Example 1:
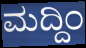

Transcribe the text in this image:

ಮದ್ದಿಂ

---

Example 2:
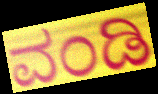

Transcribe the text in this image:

ವಂಡಿ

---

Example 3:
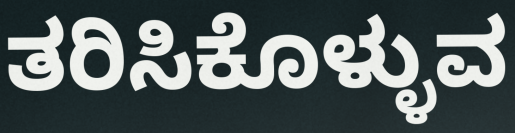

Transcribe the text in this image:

ತರಿಸಿಕೊಳ್ಳುವ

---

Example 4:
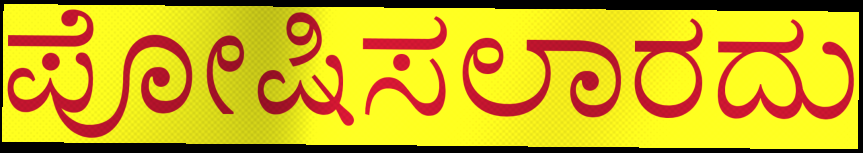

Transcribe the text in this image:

ಪೋಷಿಸಲಾರದು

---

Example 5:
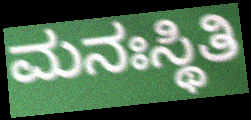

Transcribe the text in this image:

ಮನಃಸ್ಥಿತಿ